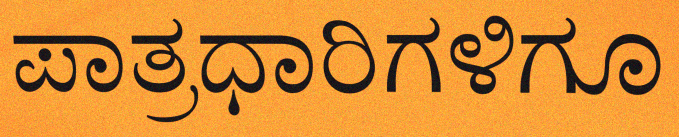
ಪಾತ್ರಧಾರಿಗಳಿಗೂ